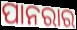
ପାନରାର